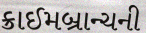
ક્રાઈમબ્રાન્ચની